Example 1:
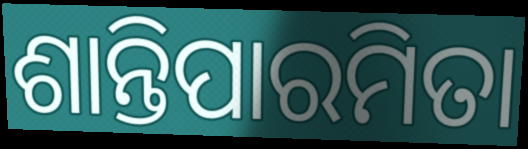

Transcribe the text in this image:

ଶାନ୍ତିପାରମିତା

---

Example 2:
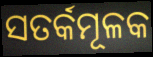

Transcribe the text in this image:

ସତର୍କମୂଳକ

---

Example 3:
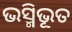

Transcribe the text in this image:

ଭସ୍ମିଭୂତ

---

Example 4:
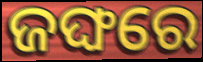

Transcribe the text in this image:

ଜଙ୍ଘରେ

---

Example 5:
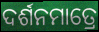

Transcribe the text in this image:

ଦର୍ଶନମାତ୍ରେ